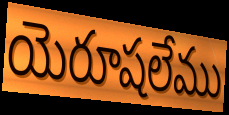
యెరూషలేము